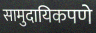
सामुदायिकपणे